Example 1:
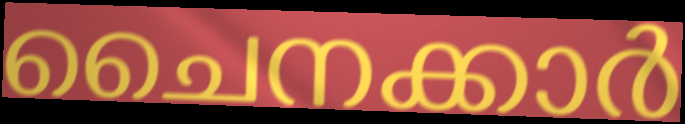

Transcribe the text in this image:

ചൈനക്കാർ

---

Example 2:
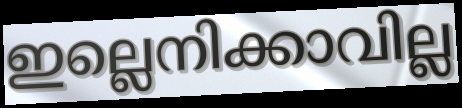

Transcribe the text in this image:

ഇല്ലെനിക്കാവില്ല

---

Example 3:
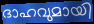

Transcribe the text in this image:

ദാഹവുമായി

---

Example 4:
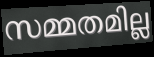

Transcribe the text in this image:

സമ്മതമില്ല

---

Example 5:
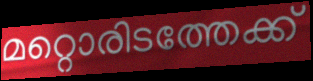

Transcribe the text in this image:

മറ്റൊരിടത്തേക്ക്